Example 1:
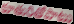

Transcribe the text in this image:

కూతురితోపాటు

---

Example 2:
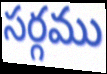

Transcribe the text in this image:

సర్గము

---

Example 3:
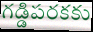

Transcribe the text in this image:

గడ్డిపరకకు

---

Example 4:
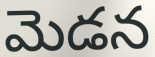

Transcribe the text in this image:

మెడన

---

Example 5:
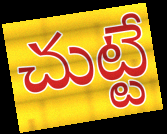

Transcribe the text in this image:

చుట్టే